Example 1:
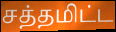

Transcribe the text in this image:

சத்தமிட்ட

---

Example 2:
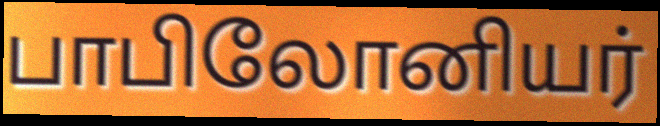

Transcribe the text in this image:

பாபிலோனியர்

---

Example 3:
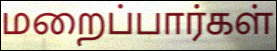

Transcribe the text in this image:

மறைப்பார்கள்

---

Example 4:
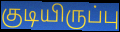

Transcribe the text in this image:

குடியிருப்பு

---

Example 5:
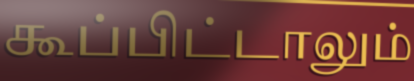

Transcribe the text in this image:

கூப்பிட்டாலும்